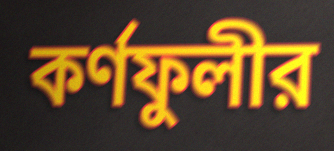
কর্ণফুলীর